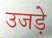
उजड़े